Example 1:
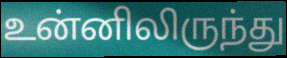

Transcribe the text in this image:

உன்னிலிருந்து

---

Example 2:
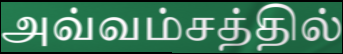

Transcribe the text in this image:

அவ்வம்சத்தில்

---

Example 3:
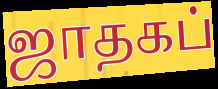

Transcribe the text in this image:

ஜாதகப்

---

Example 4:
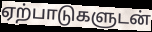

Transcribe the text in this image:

ஏற்பாடுகளுடன்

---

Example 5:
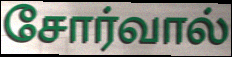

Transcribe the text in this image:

சோர்வால்